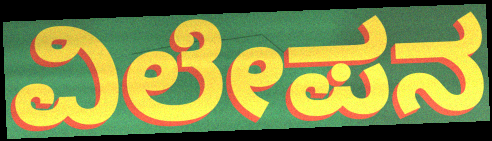
ವಿಲೇಪನ